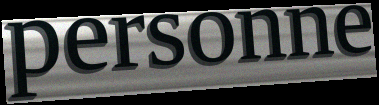
personne